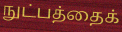
நுட்பத்தைக்